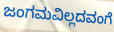
ಜಂಗಮವಿಲ್ಲದವಂಗೆ